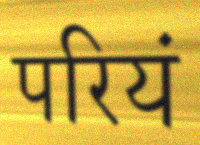
परियं